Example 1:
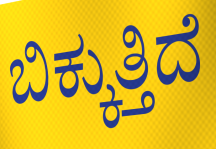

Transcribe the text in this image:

ಬಿಕ್ಕುತ್ತಿದೆ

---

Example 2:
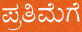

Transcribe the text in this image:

ಪ್ರತಿಮೆಗೆ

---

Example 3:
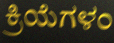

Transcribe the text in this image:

ಕ್ರಿಯೆಗಳಂ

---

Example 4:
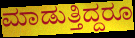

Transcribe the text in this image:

ಮಾಡುತ್ತಿದ್ದರೂ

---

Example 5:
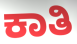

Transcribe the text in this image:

ಕಾತಿ